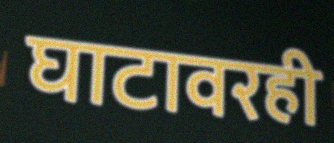
घाटावरही